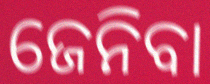
ଜେନିବା